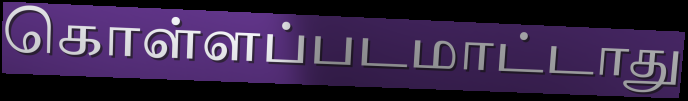
கொள்ளப்படமாட்டாது